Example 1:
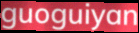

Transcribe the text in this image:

guoguiyan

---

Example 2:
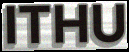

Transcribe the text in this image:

ITHU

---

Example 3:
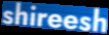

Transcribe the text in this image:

shireesh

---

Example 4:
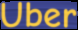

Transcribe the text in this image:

Uber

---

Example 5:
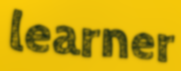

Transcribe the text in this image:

learner